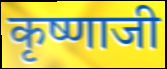
कृष्णाजी